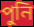
পুনি